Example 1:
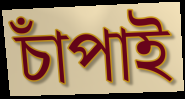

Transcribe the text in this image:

চাঁপাই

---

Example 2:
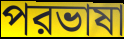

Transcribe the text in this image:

পরভাষা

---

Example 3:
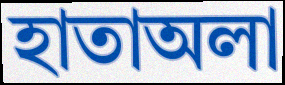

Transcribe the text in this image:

হাতাঅলা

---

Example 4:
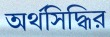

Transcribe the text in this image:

অর্থসিদ্ধির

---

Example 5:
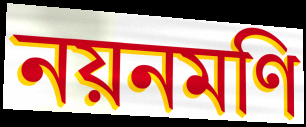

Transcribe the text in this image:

নয়নমণি